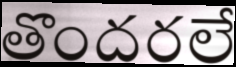
తొందరలే